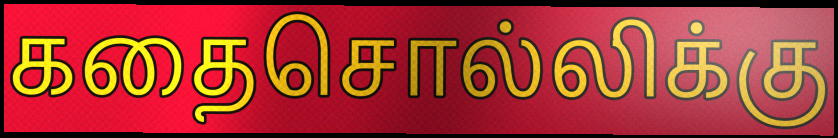
கதைசொல்லிக்கு